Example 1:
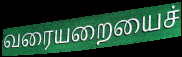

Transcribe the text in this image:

வரையறையைச்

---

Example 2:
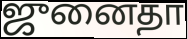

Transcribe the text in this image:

ஜுனைதா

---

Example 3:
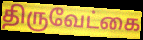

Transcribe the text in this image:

திருவேட்கை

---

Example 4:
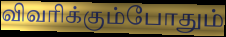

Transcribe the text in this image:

விவரிக்கும்போதும்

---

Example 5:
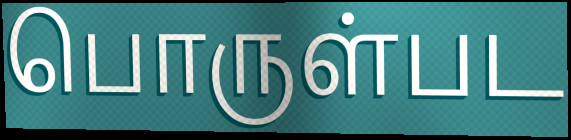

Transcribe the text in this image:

பொருள்பட